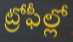
ట్రోఫీల్లో